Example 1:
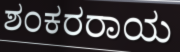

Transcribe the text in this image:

ಶಂಕರರಾಯ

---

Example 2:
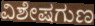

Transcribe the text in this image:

ವಿಶೇಷಗುಣ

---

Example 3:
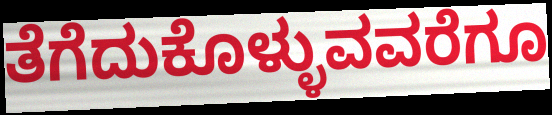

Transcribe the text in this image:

ತೆಗೆದುಕೊಳ್ಳುವವರೆಗೂ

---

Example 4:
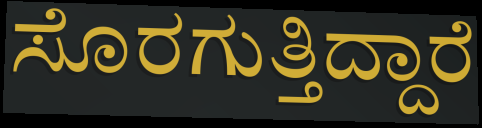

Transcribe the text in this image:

ಸೊರಗುತ್ತಿದ್ದಾರೆ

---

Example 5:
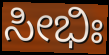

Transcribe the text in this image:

ಸೀಭಿಃ